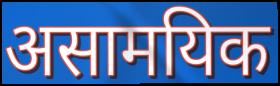
असामयिक